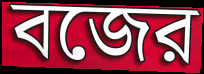
বজের